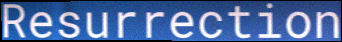
Resurrection